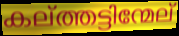
കല്ത്തട്ടിന്മേല്